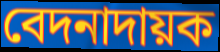
বেদনাদায়ক